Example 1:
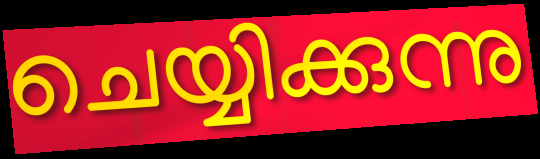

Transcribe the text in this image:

ചെയ്യിക്കുന്നു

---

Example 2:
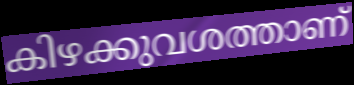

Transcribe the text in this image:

കിഴക്കുവശത്താണ്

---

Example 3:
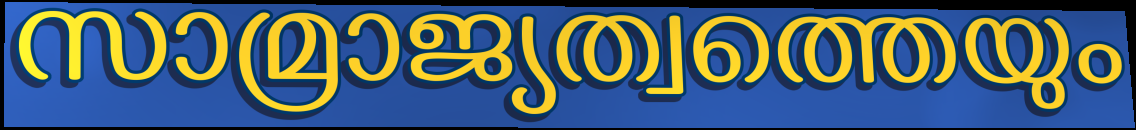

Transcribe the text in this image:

സാമ്രാജ്യത്വത്തെയും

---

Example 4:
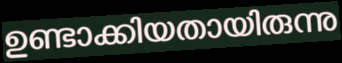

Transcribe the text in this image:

ഉണ്ടാക്കിയതായിരുന്നു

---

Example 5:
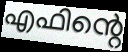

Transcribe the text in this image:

എഫിന്റെ